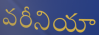
వరీనియా